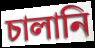
চালানি